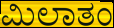
ಮಿಲಾತಂ